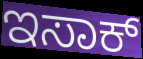
ಇಸಾಕ್